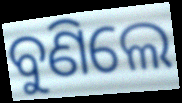
ବୁଣିଲେ